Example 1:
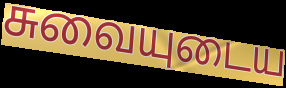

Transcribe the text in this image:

சுவையுடைய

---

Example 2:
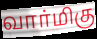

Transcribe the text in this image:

வார்மிகு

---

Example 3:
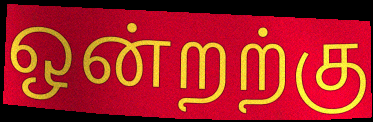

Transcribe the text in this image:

ஒன்றற்கு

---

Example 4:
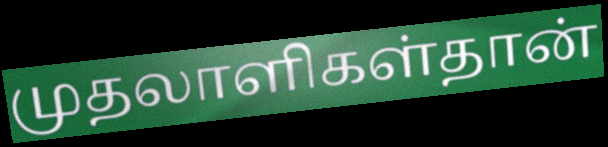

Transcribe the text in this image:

முதலாளிகள்தான்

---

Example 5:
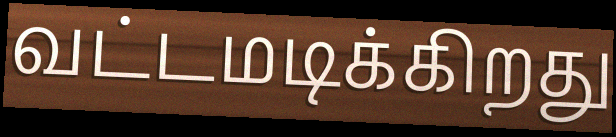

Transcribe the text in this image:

வட்டமடிக்கிறது